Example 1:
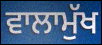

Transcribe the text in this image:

ਵਾਲਾਮੁੱਖ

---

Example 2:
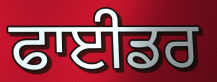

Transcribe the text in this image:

ਫਾਈਡਰ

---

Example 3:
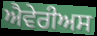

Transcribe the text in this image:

ਐਵੇਰੀਅਸ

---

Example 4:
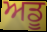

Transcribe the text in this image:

ਅਡੂ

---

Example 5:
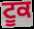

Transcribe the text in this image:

ਟੂਕ